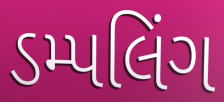
ડમ્પલિંગ